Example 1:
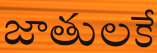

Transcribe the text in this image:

జాతులకే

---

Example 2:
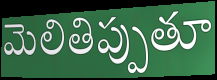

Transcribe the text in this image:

మెలితిప్పుతూ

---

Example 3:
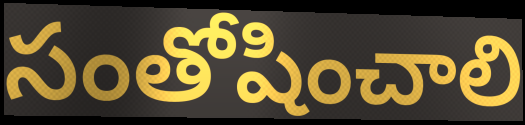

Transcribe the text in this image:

సంతోషించాలి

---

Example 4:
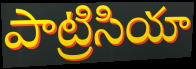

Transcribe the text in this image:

పాట్రిసియా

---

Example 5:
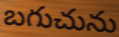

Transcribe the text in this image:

బగుచును